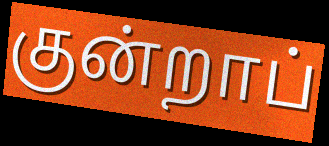
குன்றாப்